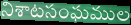
నిశాటసంఘముల